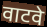
वाटवे